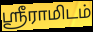
ஸ்ரீராமிடம்